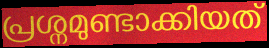
പ്രശ്നമുണ്ടാക്കിയത്